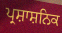
ਪ੍ਰਸ਼ਾਸ਼ਨਿਕ